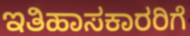
ಇತಿಹಾಸಕಾರರಿಗೆ